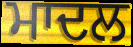
ਮਾਦਲ